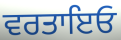
ਵਰਤਾਇਓ